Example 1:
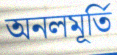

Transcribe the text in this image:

অনলমূর্তি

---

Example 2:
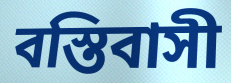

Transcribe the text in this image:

বস্তিবাসী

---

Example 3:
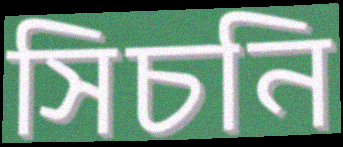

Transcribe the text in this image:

সিচনি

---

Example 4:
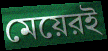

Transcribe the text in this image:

মেয়েরই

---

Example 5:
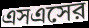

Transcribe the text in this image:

এসএসের